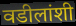
वडीलांशी